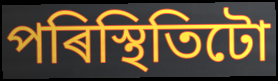
পৰিস্থিতিটো